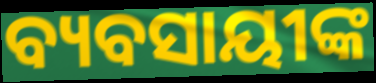
ବ୍ୟବସାୟୀଙ୍କ